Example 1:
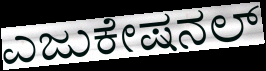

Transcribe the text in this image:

ಎಜುಕೇಷನಲ್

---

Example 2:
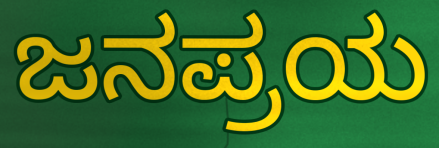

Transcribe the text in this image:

ಜನಪ್ರಯ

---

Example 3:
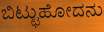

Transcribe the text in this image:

ಬಿಟ್ಟುಹೋದನು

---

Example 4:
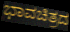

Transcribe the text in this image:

ಭಾವಚಿತ್ರದ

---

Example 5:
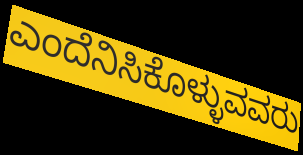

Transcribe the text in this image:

ಎಂದೆನಿಸಿಕೊಳ್ಳುವವರು